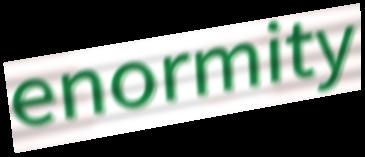
enormity